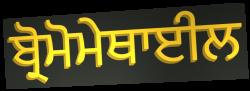
ਬ੍ਰੋਮੋਮੇਥਾਈਲ